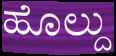
ಹೊಲ್ದು